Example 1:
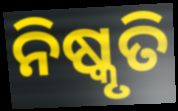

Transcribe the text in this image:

ନିଷ୍କୃତି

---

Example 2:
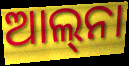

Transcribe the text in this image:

ଆଲ୍‍ନା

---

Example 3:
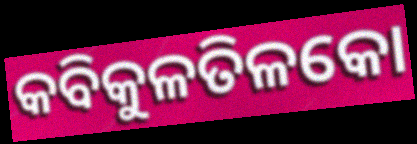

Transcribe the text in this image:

କବିକୁଳତିଳକୋ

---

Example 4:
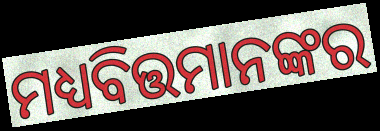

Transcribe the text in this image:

ମଧ୍ୟବିତ୍ତମାନଙ୍କର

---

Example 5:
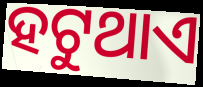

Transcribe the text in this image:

ହଟୁଥାଏ